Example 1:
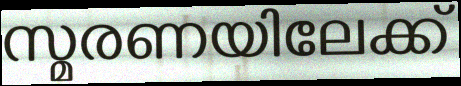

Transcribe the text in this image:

സ്മരണയിലേക്ക്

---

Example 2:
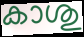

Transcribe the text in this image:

കാശു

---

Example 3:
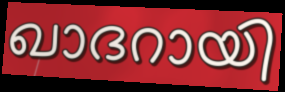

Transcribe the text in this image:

ഖാദറായി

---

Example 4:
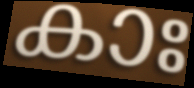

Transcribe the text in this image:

കാഃ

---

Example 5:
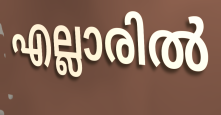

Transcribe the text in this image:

എല്ലാരിൽ